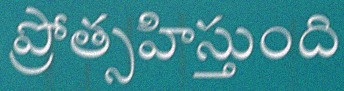
ప్రోత్సహిస్తుంది